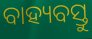
ବାହ୍ୟବସ୍ତୁ